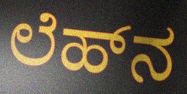
ಲೆಹ್‌ನ